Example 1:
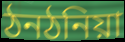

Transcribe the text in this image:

ঠনঠনিয়া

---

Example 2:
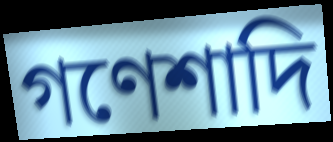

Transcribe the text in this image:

গণেশাদি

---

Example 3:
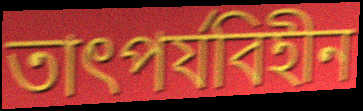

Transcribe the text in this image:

তাৎপর্যবিহীন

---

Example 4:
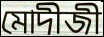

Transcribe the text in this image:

মোদীজী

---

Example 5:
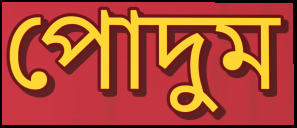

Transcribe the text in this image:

পোদুম